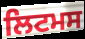
ਲਿਟਮਸ